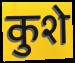
कुशे